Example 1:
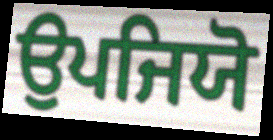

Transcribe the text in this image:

ਉਪਜਿਯੋ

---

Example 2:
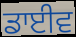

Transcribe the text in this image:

ਡਾਈਵ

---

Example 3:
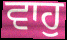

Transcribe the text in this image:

ਵਾਹੁ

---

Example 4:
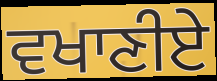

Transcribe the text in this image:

ਵਖਾਣੀਏ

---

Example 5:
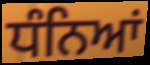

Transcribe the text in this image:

ਧੰਨਿਆਂ